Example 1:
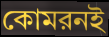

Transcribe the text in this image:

কোমরনই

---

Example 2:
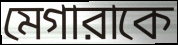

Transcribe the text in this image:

মেগারাকে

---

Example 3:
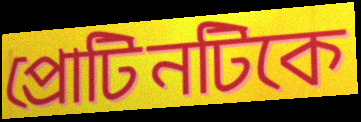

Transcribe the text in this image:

প্রোটিনটিকে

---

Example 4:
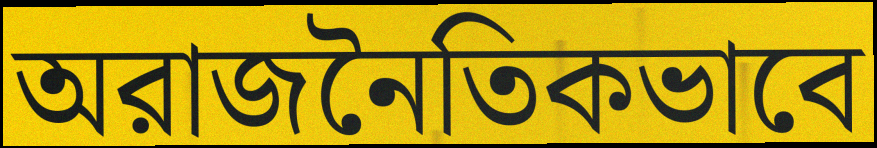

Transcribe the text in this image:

অরাজনৈতিকভাবে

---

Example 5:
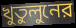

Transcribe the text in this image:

খুতুলুনের